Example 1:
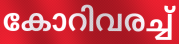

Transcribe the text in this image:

കോറിവരച്ച്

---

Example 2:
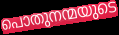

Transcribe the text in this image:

പൊതുനന്മയുടെ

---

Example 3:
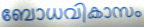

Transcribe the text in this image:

ബോധവികാസം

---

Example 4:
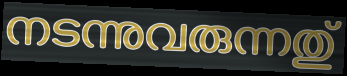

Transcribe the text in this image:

നടന്നുവരുന്നതു്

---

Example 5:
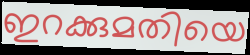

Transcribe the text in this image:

ഇറക്കുമതിയെ